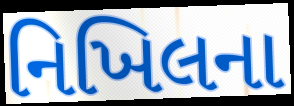
નિખિલના